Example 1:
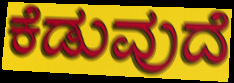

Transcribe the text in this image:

ಕೆಡುವುದೆ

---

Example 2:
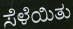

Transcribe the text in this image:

ಸೆಳೆಯಿತು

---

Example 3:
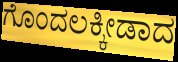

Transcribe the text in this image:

ಗೊಂದಲಕ್ಕೀಡಾದ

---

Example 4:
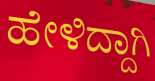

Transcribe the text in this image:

ಹೇಳಿದ್ದಾಗಿ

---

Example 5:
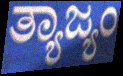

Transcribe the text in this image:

ತ್ಯಾಜ್ಯಂ